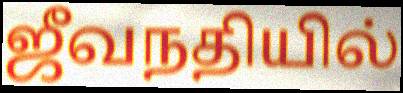
ஜீவநதியில்